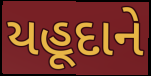
યહૂદાને